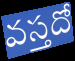
వస్తదో